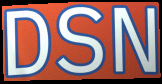
DSN